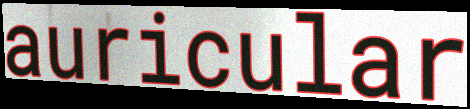
auricular